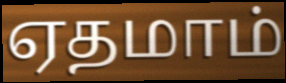
ஏதமாம்